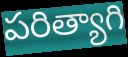
పరిత్యాగి